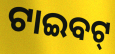
ଟାଇବଟ୍